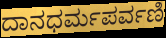
ದಾನಧರ್ಮಪರ್ವಣಿ